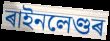
ৰাইনলেণ্ডৰ